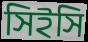
সিইসি